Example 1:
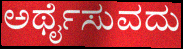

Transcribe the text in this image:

ಅರ್ಥೈಸುವದು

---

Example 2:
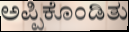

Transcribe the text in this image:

ಅಪ್ಪಿಕೊಂಡಿತು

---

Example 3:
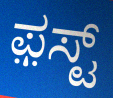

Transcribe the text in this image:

ಫ಼ಸ್ಟ್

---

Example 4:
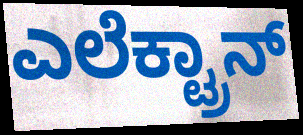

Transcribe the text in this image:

ಎಲೆಕ್ಟ್ರಾನ್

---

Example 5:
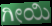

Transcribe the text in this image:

ಗೀಯಿ